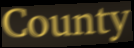
County